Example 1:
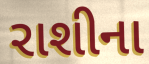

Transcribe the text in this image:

રાશીના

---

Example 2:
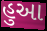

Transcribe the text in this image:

હુઆ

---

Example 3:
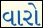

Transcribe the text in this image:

વારો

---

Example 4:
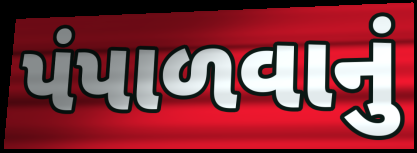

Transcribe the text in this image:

પંપાળવાનું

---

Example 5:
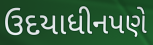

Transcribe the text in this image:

ઉદયાધીનપણે